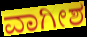
ವಾಗೀಶ